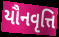
યૌનવૃત્તિ